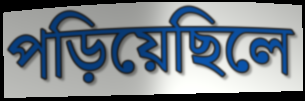
পড়িয়েছিলে